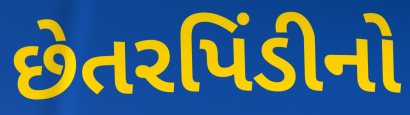
છેતરપિંડીનો